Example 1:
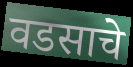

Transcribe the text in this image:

वडसाचे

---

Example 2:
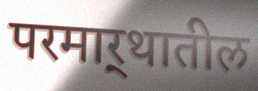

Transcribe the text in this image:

परमार्थातील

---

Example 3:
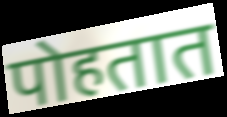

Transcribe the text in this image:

पोहतात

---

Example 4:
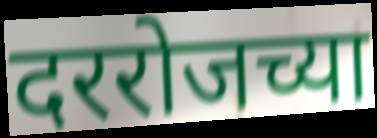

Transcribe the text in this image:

दररोजच्या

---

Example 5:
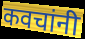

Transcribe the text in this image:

कवचांनी